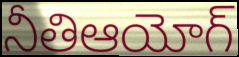
నీతిఆయోగ్